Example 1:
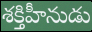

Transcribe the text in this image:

శక్తిహీనుడు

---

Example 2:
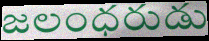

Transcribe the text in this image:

జలంధరుడు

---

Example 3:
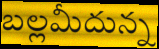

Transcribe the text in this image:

బల్లమీదున్న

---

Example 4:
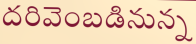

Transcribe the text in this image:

దరివెంబడినున్న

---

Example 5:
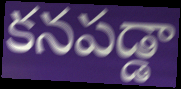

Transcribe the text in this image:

కనపడ్డా